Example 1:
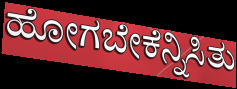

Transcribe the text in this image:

ಹೋಗಬೇಕೆನ್ನಿಸಿತು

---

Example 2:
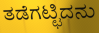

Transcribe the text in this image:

ತಡೆಗಟ್ಟಿದನು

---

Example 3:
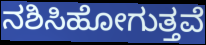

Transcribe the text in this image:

ನಶಿಸಿಹೋಗುತ್ತವೆ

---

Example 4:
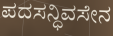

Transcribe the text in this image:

ಪದಸನ್ಧಿವಸೇನ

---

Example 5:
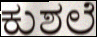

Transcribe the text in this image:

ಕುಶಲೆ